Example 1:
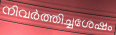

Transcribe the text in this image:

നിവർത്തിച്ചശേഷം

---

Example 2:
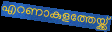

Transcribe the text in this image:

എറണാകുളത്തേയ്ക്ക്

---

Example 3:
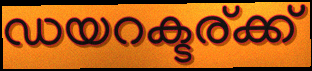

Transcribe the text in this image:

ഡയറക്ടര്ക്ക്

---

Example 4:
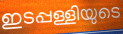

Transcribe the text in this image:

ഇടപ്പള്ളിയുടെ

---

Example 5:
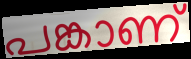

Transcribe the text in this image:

പങ്കാണ്